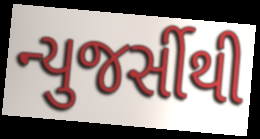
ન્યુજર્સીથી